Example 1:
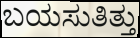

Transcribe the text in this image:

ಬಯಸುತಿತ್ತು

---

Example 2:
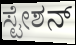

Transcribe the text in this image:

ಸ್ಟೇಶನ್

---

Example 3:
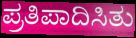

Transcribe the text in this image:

ಪ್ರತಿಪಾದಿಸಿತು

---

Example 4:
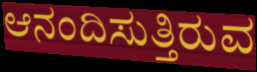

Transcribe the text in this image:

ಆನಂದಿಸುತ್ತಿರುವ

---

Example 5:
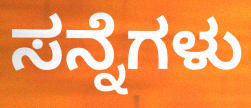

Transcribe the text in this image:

ಸನ್ನೆಗಳು